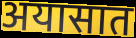
अयासात